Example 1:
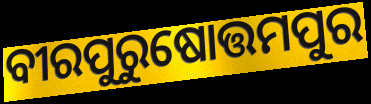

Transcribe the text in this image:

ବୀରପୁରୁଷୋତ୍ତମପୁର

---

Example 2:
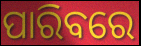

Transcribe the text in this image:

ପାରିବରେ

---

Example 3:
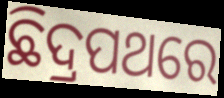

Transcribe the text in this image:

ଛିଦ୍ରପଥରେ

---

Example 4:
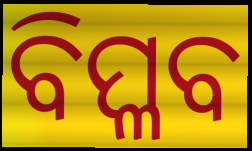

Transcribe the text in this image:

ବିପ୍ଳବ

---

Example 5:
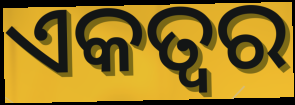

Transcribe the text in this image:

ଏକତ୍ବର